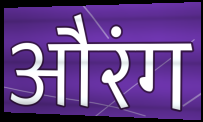
औरंग